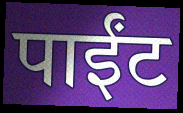
पाईंट